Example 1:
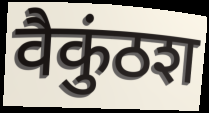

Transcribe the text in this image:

वैकुंठश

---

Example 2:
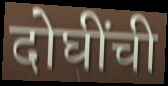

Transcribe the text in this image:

दोघींची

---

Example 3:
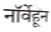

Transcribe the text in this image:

नॉर्वेहून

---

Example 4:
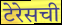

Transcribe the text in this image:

टेरेसची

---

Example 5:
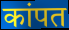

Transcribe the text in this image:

कांपत